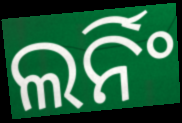
ଲର୍ନିଂ